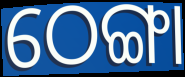
ଠେଙ୍ଗା